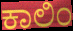
ಕಾಲಿಂ